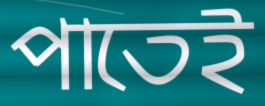
পাতেই